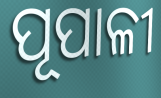
ପୂପାଳୀ